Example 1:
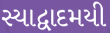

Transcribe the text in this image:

સ્યાદ્વાદમયી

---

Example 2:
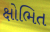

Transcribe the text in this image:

ક્ષોભિત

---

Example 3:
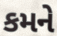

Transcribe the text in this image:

કમને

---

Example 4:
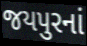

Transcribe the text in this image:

જયપુરનાં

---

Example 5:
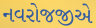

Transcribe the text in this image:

નવરોજજીએ